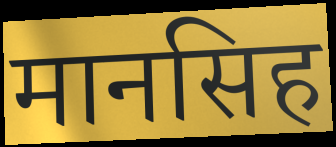
मानसिह